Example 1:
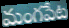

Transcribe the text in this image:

మంగపేట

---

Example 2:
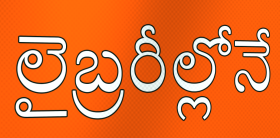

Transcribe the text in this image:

లైబ్రరీల్లోనే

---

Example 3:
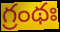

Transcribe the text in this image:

గ్రంథః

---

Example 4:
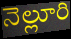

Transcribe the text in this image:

నెల్లూరి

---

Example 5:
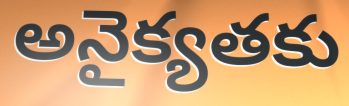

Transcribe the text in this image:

అనైక్యతకు